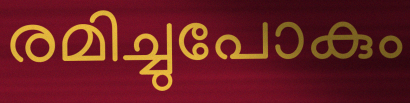
രമിച്ചുപോകും